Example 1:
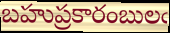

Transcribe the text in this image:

బహుప్రకారంబులఁ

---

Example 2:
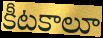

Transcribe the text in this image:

కీటకాలూ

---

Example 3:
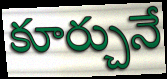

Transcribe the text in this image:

కూర్చునే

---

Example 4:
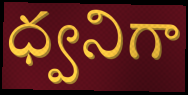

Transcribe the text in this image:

ధ్వనిగా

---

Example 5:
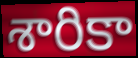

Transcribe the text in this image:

శారికా